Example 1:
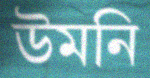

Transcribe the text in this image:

উমনি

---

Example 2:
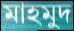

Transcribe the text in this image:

মাহমুদ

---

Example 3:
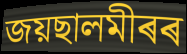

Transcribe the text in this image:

জয়ছালমীৰৰ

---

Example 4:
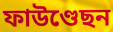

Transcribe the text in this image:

ফাউণ্ডেছন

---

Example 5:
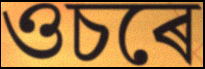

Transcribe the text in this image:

ওচৰে